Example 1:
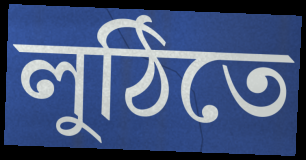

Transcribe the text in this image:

লুঠিতে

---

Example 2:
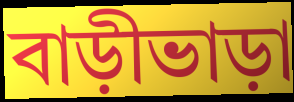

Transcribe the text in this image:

বাড়ীভাড়া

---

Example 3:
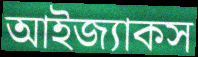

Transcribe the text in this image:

আইজ্যাকস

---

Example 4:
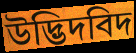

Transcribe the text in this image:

উদ্ভিদবিদ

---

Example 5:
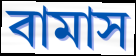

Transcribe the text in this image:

বামাস